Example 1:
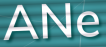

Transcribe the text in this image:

ANe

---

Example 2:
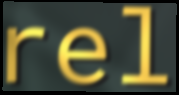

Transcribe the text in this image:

rel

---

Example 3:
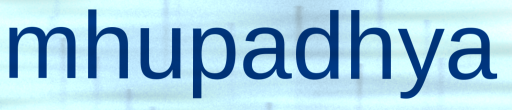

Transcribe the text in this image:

mhupadhya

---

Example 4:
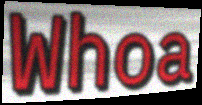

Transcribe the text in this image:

Whoa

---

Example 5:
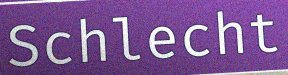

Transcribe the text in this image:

Schlecht